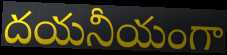
దయనీయంగా